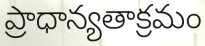
ప్రాధాన్యతాక్రమం